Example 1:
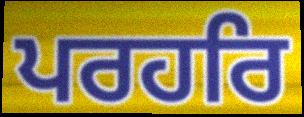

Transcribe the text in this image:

ਪਰਹਰਿ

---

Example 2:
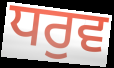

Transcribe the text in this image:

ਧਰੁਵ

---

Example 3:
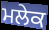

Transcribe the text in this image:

ਮਲੇਕ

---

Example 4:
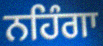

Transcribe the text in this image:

ਨਹਿੰਗਾ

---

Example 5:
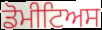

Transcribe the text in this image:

ਡੋਮੀਟਿਅਸ